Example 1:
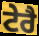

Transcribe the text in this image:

ਟੇਰੈ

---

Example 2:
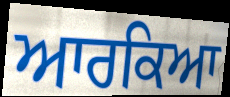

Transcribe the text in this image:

ਆਰਕਿਆ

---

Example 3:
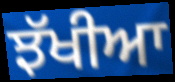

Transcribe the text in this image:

ਝੱਖੀਆ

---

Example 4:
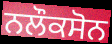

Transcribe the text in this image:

ਨਲੌਕਸੋਨ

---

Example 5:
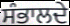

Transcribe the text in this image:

ਸੰਭਾਲਦੇ